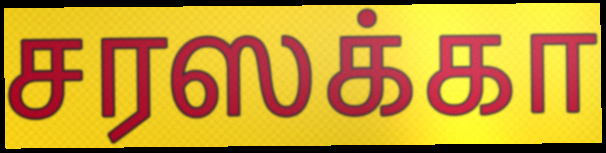
சரஸக்கா